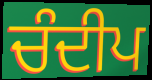
ਚੰਦੀਪ